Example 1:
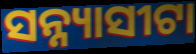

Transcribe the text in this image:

ସନ୍ନ୍ୟାସୀଟା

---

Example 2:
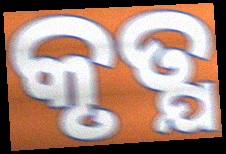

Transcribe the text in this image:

କୃତ୍ଯ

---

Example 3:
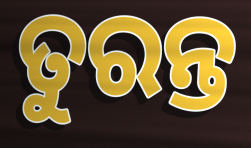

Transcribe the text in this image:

ତୁରନ୍ତ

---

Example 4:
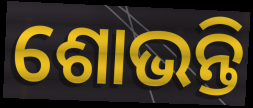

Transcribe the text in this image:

ଶୋଭନ୍ତି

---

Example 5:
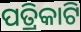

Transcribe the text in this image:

ପତ୍ରିକାଟି